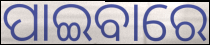
ପାଇବାରେ